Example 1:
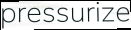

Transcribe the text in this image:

pressurize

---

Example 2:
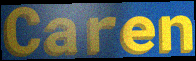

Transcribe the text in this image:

Caren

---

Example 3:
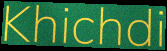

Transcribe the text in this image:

Khichdi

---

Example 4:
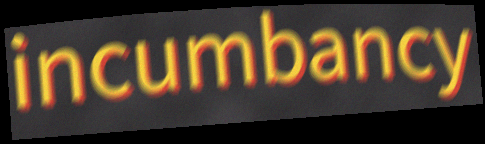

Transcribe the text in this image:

incumbancy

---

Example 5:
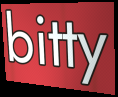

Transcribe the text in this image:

bitty